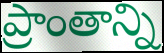
ప్రాంతాన్ని